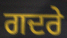
ਗਦਰੇ